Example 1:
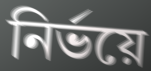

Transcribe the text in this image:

নিৰ্ভয়ে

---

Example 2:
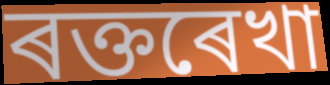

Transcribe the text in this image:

ৰক্তৰেখা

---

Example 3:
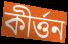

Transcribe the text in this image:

কীৰ্ত্তন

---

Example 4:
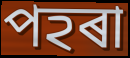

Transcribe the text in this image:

পহৰা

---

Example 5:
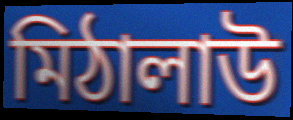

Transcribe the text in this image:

মিঠালাউ